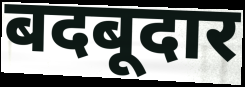
बदबूदार